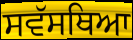
ਸਵੱਸਥਿਆ